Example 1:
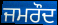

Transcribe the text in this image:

ਜਮਰੌਦ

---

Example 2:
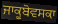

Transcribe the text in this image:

ਜਾਕੂਬੋਵਸਕਾ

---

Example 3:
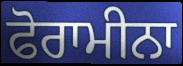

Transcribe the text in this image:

ਫੋਰਾਮੀਨਾ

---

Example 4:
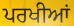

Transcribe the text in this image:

ਪਰਖੀਆਂ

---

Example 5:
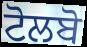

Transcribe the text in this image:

ਟੋਲਬੋ